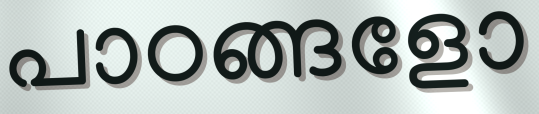
പാഠങ്ങളോ